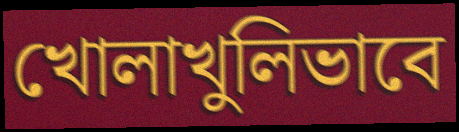
খোলাখুলিভাবে